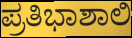
ಪ್ರತಿಭಾಶಾಲಿ